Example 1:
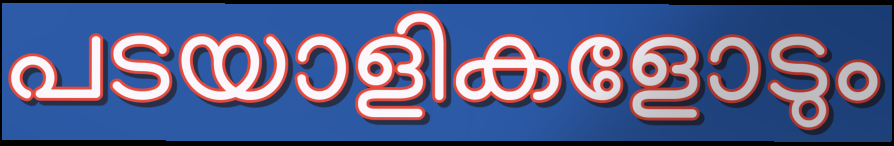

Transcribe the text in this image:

പടയാളികളോടും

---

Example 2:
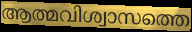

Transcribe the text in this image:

ആത്മവിശ്വാസത്തെ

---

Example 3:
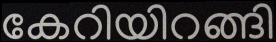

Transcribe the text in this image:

കേറിയിറങ്ങി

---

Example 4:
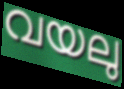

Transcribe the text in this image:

വയലു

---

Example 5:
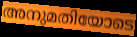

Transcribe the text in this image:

അനുമതിയോടെ